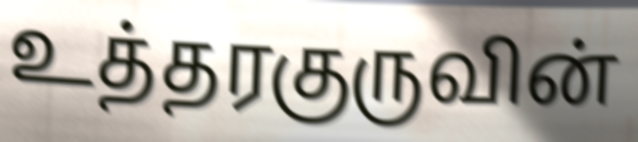
உத்தரகுருவின்